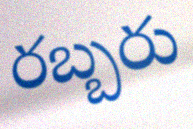
రబ్బరు